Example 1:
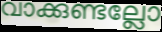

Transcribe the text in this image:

വാക്കുണ്ടല്ലോ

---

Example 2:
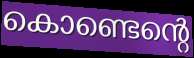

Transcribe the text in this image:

കൊണ്ടെന്റെ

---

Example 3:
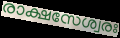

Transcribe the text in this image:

രാക്ഷസേശ്വരഃ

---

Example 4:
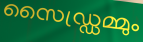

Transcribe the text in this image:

സൈഡ്ഡ്രമ്മും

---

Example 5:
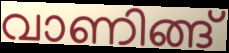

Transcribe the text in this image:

വാണിങ്ങ്